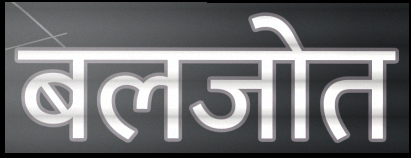
बलजोत